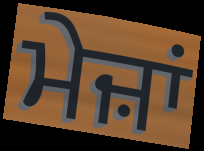
ਮੇਜ਼ਾਂ